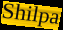
Shilpa